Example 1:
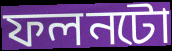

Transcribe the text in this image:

ফলনটো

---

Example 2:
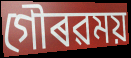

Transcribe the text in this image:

গৌৰৱময়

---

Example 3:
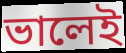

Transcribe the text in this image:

ভালেই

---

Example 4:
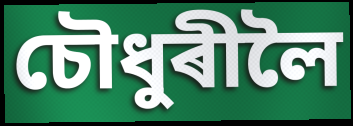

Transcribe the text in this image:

চৌধুৰীলৈ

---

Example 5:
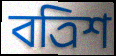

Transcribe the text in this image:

বত্ৰিশ